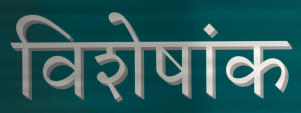
विशेषांक